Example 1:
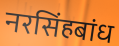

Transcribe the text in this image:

नरसिंहबांध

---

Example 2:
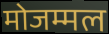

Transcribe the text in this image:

मोजम्मल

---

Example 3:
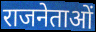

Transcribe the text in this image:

राजनेताओं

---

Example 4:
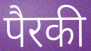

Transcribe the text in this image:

पैरकी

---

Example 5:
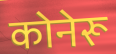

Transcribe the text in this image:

कोनेरू